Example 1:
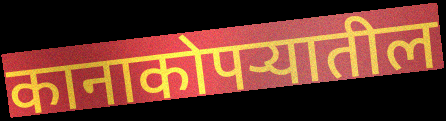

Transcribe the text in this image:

कानाकोपऱ्यातील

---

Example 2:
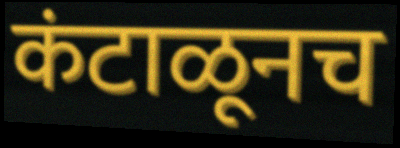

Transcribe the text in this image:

कंटाळूनच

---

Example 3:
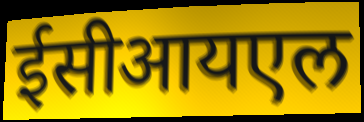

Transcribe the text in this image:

ईसीआयएल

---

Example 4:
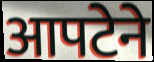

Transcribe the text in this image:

आपटेने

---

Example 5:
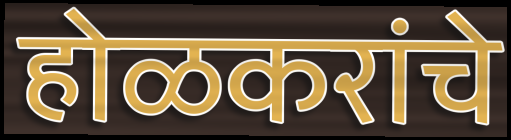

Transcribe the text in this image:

होळकरांचे